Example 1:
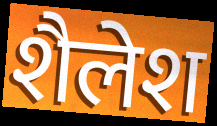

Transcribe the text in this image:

शैलेश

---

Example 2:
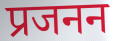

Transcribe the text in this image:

प्रजनन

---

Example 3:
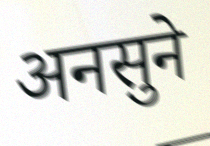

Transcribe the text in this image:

अनसुने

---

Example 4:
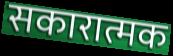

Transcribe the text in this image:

सकारात्‍मक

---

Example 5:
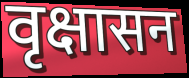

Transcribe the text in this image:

वृक्षासन